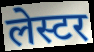
लेस्टर